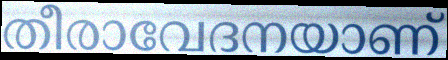
തീരാവേദനയാണ്